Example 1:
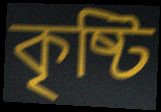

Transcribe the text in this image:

কৃষ্টি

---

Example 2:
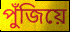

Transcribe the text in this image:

পুঁজিয়ে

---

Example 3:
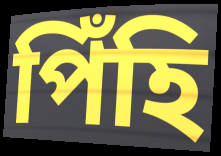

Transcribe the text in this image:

পিঁহি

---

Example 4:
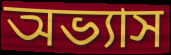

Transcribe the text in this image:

অভ্যাস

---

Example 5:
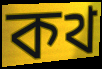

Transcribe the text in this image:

কথ